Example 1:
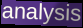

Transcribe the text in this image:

analysis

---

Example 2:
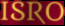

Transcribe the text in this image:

ISRO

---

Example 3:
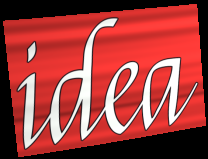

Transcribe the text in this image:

idea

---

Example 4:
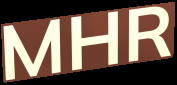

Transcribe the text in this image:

MHR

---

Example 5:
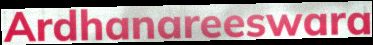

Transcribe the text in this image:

Ardhanareeswara